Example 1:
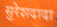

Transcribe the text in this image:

सुरेशदादा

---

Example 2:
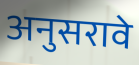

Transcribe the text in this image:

अनुसरावे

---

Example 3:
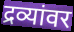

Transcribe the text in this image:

द्रव्यांवर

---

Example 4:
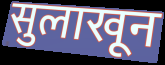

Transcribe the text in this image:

सुलाखून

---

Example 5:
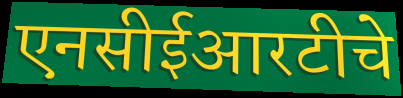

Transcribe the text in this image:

एनसीईआरटीचे